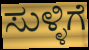
ಸುಳ್ಳಿಗೆ